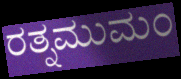
ರತ್ನಮುಮಂ